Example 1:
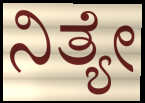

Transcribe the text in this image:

ನಿತ್ಯೇ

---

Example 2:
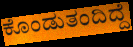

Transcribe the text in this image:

ಕೊಂಡುತಂದಿದ್ದೆ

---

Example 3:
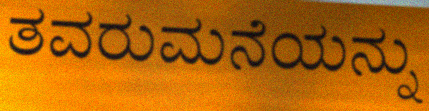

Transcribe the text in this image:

ತವರುಮನೆಯನ್ನು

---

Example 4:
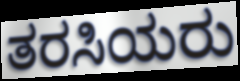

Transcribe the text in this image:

ತರಸಿಯರು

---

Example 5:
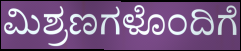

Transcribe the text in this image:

ಮಿಶ್ರಣಗಳೊಂದಿಗೆ